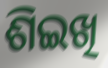
ଶିଇଖି